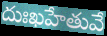
దుఃఖహేతువే